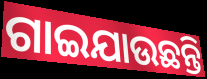
ଗାଇଯାଉଛନ୍ତି